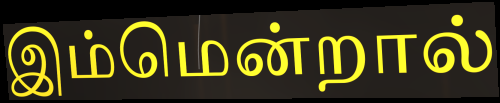
இம்மென்றால்